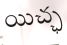
యిచ్ఛ